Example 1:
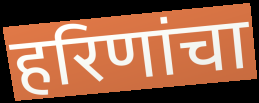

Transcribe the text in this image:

हरिणांचा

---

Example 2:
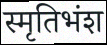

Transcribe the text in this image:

स्मृतिभंश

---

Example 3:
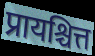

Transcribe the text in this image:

प्रायश्चित्त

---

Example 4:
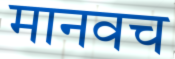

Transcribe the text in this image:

मानवच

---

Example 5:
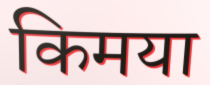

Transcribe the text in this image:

किमया